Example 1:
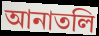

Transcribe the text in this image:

আনাতলি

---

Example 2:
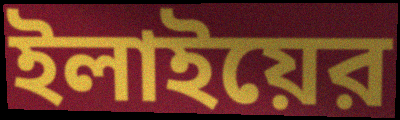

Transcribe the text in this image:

ইলাইয়ের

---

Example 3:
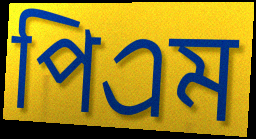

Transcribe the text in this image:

পিএম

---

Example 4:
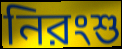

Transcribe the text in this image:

নিরংশু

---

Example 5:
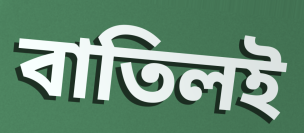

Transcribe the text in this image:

বাতিলই